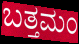
ಬತ್ತಮಂ